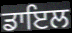
ਡਾਇਲ